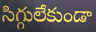
సిగ్గులేకుండా